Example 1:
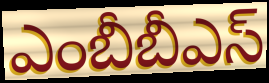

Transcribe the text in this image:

ఎంబీబీఎస్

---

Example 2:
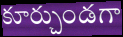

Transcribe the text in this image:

కూర్చుండగా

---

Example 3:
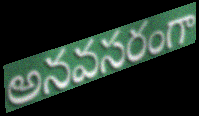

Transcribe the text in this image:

అనవసరంగా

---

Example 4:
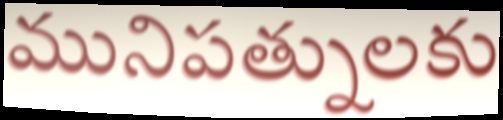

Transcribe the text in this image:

మునిపత్నులకు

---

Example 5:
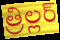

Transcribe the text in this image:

త్రిల్లర్